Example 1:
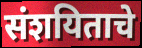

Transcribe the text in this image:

संशयिताचे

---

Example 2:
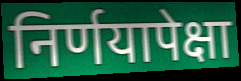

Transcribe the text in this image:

निर्णयापेक्षा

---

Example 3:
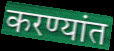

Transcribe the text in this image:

करण्यांत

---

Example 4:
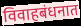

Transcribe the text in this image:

विवाहबंधनात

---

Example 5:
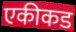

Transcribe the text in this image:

एकीकड